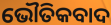
ଭୌତିକବାଦ